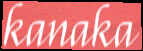
kanaka